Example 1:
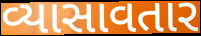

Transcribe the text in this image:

વ્યાસાવતાર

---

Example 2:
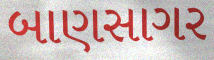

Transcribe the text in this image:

બાણસાગર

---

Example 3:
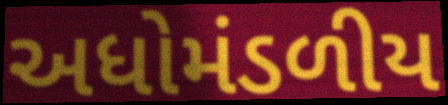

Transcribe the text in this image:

અધોમંડળીય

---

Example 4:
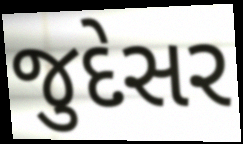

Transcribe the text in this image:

જુદેસર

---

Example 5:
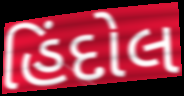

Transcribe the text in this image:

હિંદોલ